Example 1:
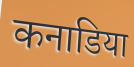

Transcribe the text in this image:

कनाडिया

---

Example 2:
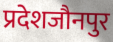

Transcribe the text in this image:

प्रदेशजौनपुर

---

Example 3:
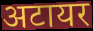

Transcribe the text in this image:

अटायर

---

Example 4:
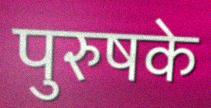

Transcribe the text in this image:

पुरुषके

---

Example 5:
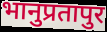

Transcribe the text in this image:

भानुप्रतापुर